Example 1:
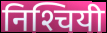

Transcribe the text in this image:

निश्चियी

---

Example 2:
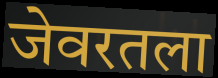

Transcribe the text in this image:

जेवरतला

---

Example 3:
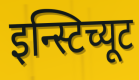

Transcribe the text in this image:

इन्स्टिच्यूट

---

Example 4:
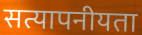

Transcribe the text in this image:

सत्यापनीयता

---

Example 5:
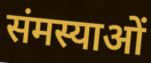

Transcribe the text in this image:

संमस्याओं